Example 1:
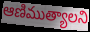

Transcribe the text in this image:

ఆణిముత్యాలని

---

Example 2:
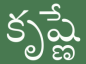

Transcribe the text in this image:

కృష్ణే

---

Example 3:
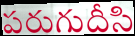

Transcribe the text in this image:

పరుగుదీసి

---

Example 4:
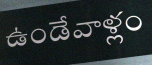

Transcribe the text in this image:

ఉండేవాళ్లం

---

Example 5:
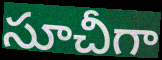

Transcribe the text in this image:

సూచీగా